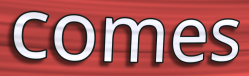
comes